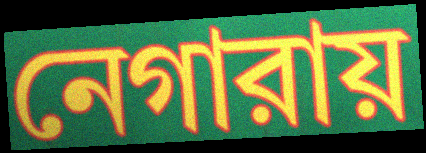
নেগারায়